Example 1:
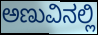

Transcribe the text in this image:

ಅಣುವಿನಲ್ಲಿ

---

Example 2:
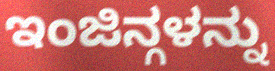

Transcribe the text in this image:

ಇಂಜಿನ್ಗಳನ್ನು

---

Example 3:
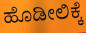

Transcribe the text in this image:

ಹೊಡೀಲಿಕ್ಕೆ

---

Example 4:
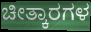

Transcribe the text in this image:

ಚೀತ್ಕಾರಗಳ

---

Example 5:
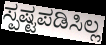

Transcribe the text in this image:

ಸ್ಪಷ್ಟಪಡಿಸಿಲ್ಲ